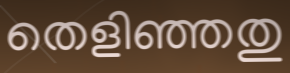
തെളിഞ്ഞതു